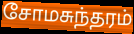
சோமசுந்தரம்